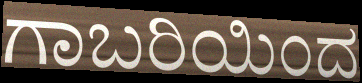
ಗಾಬರಿಯಿಂದ